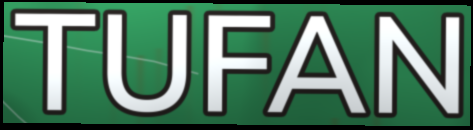
TUFAN